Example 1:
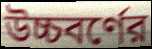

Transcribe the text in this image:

উচ্চবর্ণের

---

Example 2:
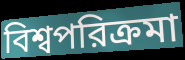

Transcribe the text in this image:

বিশ্বপরিক্রমা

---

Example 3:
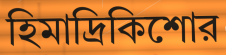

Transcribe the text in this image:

হিমাদ্রিকিশোর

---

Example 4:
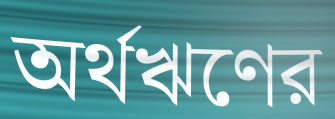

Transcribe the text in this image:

অর্থঋণের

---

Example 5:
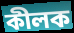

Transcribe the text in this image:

কীলক